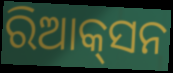
ରିଆକ୍‌ସନ